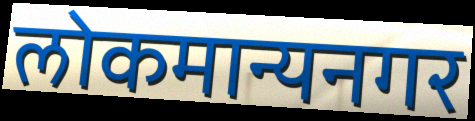
लोकमान्यनगर